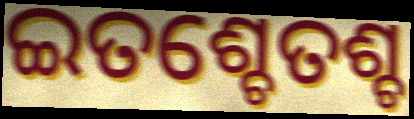
ଇତଶ୍ଚେତଶ୍ଚ